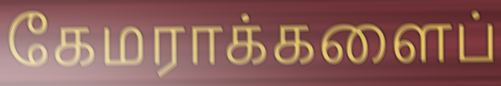
கேமராக்களைப்